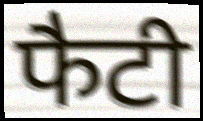
फैटी